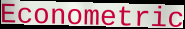
Econometric